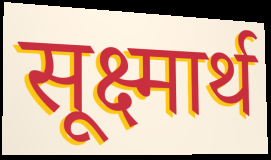
सूक्ष्मार्थ